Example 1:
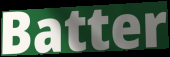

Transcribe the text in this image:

Batter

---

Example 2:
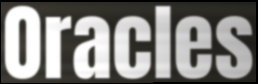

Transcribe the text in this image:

Oracles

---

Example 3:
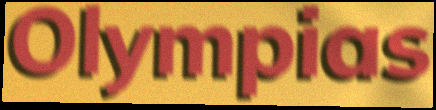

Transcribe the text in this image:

Olympias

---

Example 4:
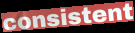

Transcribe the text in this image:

consistent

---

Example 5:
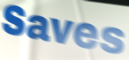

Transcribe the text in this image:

Saves